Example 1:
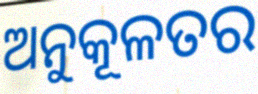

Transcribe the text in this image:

ଅନୁକୂଳତର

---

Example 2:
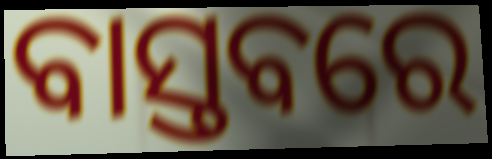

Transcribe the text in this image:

ବାସ୍ତବରେ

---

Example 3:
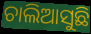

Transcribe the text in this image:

ଚାଲିଆସୁଛି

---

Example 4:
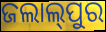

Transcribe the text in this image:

ଜଲାଲ୍‍ପୁର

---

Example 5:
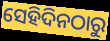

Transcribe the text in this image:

ସେହିଦିନଠାରୁ